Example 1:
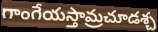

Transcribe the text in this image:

గాంగేయస్తామ్రచూడశ్చ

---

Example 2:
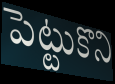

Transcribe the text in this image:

పెట్టుకొని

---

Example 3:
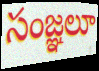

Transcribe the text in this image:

సంజ్ఞలూ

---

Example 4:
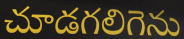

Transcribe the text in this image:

చూడగలిగెను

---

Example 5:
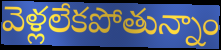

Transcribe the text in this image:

వెళ్లలేకపోతున్నాం